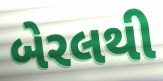
બેરલથી